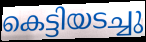
കെട്ടിയടച്ചു